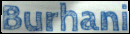
Burhani